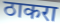
ठाकरा